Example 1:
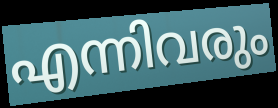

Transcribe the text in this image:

എന്നിവരും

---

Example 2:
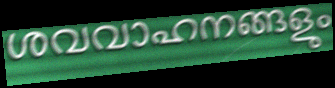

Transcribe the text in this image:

ശവവാഹനങ്ങളും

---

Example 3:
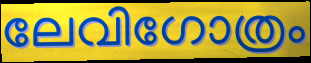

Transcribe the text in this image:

ലേവിഗോത്രം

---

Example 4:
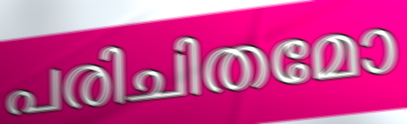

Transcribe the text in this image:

പരിചിതമോ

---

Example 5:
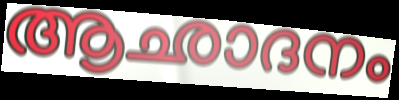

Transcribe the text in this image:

ആഛാദനം